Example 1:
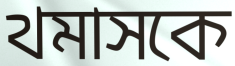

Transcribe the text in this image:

থমাসকে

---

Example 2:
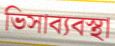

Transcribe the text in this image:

ভিসাব্যবস্থা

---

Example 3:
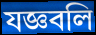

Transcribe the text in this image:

যজ্ঞবলি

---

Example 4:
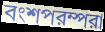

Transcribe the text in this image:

বংশপরম্পরা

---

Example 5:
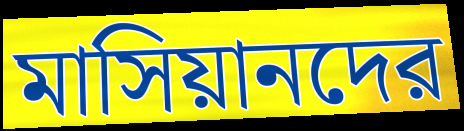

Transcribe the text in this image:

মাসিয়ানদের